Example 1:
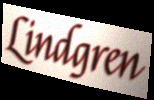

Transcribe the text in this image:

Lindgren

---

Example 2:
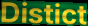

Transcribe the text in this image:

Distict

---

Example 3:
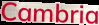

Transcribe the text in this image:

Cambria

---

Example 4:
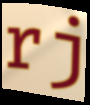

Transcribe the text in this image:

rj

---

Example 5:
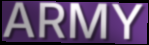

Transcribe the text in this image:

ARMY